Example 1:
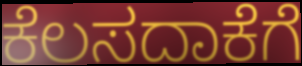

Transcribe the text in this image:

ಕೆಲಸದಾಕೆಗೆ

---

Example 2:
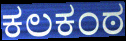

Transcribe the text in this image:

ಕಲಕಂಠ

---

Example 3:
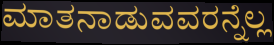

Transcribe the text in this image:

ಮಾತನಾಡುವವರನ್ನೆಲ್ಲ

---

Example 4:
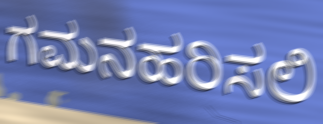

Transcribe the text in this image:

ಗಮನಹರಿಸಲಿ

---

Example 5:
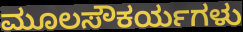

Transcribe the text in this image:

ಮೂಲಸೌಕರ್ಯಗಳು